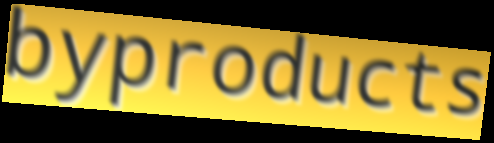
byproducts